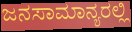
ಜನಸಾಮಾನ್ಯರಲ್ಲಿ